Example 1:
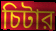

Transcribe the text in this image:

চিটার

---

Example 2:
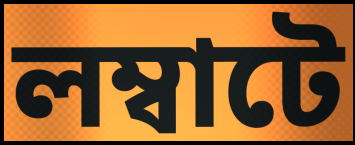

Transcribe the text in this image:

লম্বাটে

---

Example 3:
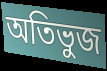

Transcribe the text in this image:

অতিভুজ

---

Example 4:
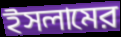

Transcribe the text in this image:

ইসলামের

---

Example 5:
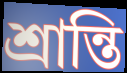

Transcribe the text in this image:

শ্রান্তি